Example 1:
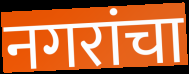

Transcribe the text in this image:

नगरांचा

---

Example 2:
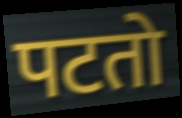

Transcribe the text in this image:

पटतो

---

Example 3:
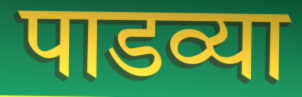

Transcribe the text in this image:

पाडव्या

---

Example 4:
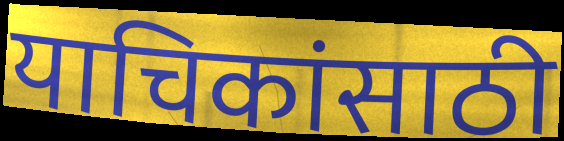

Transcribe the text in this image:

याचिकांसाठी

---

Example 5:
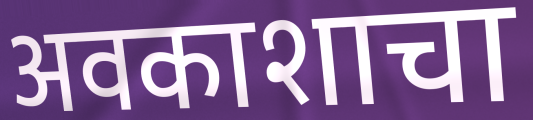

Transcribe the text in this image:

अवकाशाचा